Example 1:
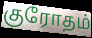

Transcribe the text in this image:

குரோதம்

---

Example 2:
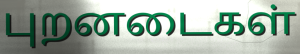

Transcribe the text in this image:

புறனடைகள்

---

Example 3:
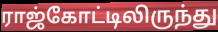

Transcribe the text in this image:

ராஜ்கோட்டிலிருந்து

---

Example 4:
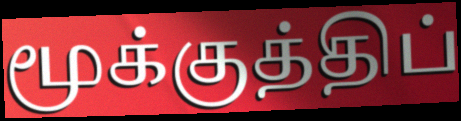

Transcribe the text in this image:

மூக்குத்திப்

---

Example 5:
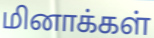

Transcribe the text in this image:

மினாக்கள்